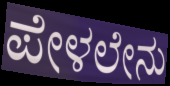
ಪೇಳಲೇನು